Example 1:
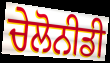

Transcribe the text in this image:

ਚੇਲੋਨੀਡੀ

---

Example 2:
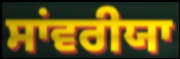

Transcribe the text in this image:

ਸਾਂਵਰੀਯਾ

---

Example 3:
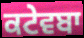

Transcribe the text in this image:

ਕਟੇਵਬਾ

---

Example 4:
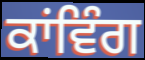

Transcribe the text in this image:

ਕਾਂਵਿੰਗ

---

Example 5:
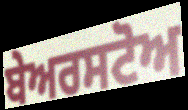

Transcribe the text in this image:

ਬੇਅਰਸਟੋਅ